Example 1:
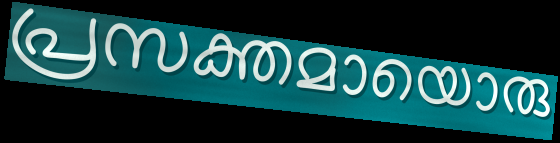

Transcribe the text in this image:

പ്രസക്തമായൊരു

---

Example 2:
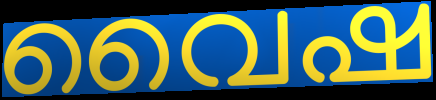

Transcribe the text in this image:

വൈഷ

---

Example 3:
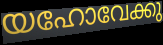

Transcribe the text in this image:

യഹോവേക്കു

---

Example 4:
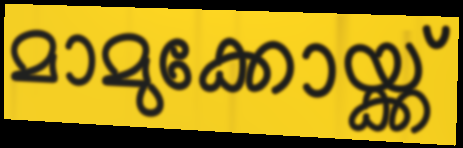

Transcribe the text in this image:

മാമുക്കോയ്ക്ക്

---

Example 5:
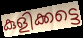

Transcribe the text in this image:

കുളിക്കട്ടെ